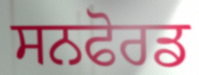
ਸਨਫੋਰਡ